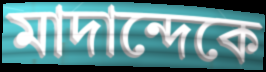
মাদান্দেকে